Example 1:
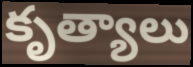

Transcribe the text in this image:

కృత్యాలు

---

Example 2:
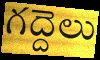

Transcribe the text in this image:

గద్దెలు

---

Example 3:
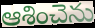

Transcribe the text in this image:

ఆశించెను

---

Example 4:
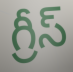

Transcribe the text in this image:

గ్రీస్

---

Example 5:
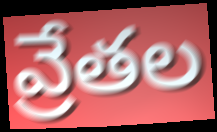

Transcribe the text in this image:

వ్రేతల